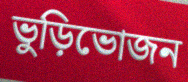
ভুড়িভোজন